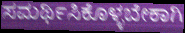
ಸಮರ್ಥಿಸಿಕೊಳ್ಳಬೇಕಾಗಿ